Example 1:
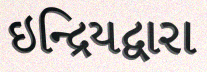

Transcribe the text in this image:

ઇન્દ્રિયદ્વારા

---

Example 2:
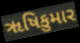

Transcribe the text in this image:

ૠષિકુમાર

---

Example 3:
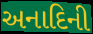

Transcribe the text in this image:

અનાદિની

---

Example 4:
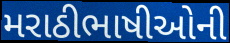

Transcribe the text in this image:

મરાઠીભાષીઓની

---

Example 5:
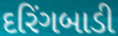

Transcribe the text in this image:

દરિંગબાડી